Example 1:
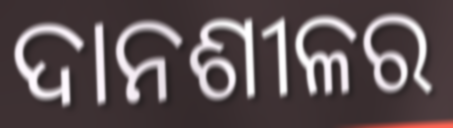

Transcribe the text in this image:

ଦାନଶୀଳର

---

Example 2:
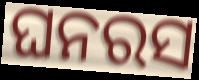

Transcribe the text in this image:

ଘନରସ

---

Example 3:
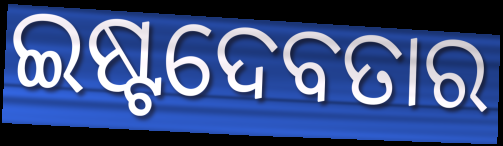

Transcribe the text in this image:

ଇଷ୍ଟଦେବତାର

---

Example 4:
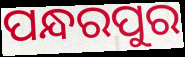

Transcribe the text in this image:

ପନ୍ଧରପୁର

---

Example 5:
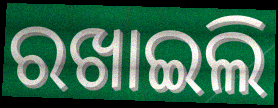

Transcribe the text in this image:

ରଖାଇଲି